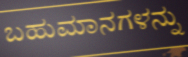
ಬಹುಮಾನಗಳನ್ನು